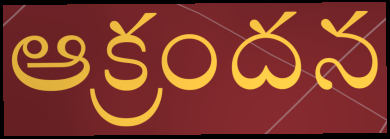
ఆక్రందన